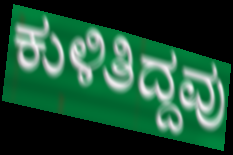
ಕುಳಿತಿದ್ದವು